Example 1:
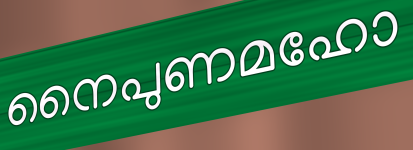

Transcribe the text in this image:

നൈപുണമഹോ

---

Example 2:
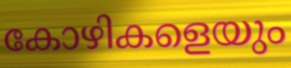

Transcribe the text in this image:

കോഴികളെയും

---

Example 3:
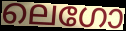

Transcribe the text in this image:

ലെഗോ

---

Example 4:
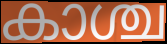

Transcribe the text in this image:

കാശ്ച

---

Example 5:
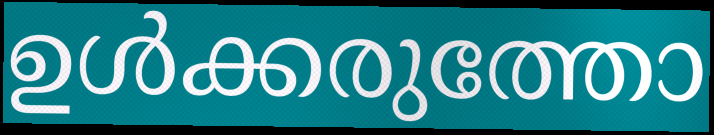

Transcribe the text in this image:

ഉൾക്കരുത്തോ